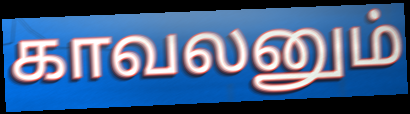
காவலனும்